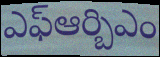
ఎఫ్ఆర్బిఎం